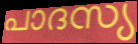
പാദസ്യ